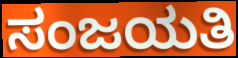
ಸಂಜಯತಿ